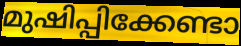
മുഷിപ്പിക്കേണ്ടാ